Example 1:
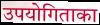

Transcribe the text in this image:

उपयोगिताका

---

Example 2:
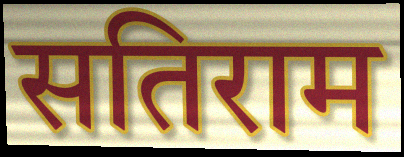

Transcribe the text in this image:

सतिराम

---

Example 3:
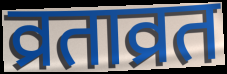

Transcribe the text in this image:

व्रताव्रत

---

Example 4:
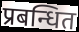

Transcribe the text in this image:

प्रबन्धित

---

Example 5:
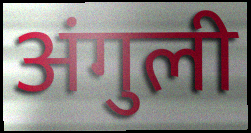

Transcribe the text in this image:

अंगुली